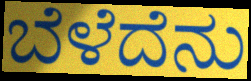
ಬೆಳೆದೆನು